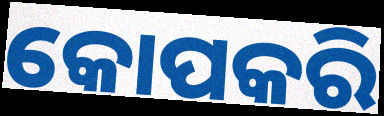
କୋପକରି